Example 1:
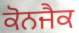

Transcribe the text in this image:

ਕੋਨਜੈਕ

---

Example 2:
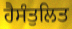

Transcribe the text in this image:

ਹੈਸੰਤੁਲਿਤ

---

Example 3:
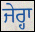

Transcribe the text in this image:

ਜੇਰ੍ਹਾ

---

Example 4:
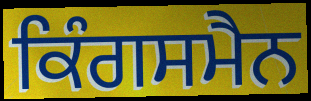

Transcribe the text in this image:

ਕਿੰਗਸਮੈਨ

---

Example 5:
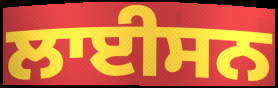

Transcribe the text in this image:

ਲਾਈਸਨ